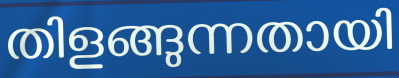
തിളങ്ങുന്നതായി